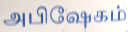
அபிஷேகம்